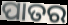
ପାତର